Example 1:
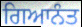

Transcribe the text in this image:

ਗਿਆਨੰਤ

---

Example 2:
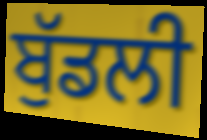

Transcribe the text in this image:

ਬੁੱਡਲੀ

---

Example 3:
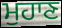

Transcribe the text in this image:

ਮੁਹਾਣ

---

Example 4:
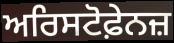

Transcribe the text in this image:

ਅਰਿਸਟੋਫ਼ੇਨਜ਼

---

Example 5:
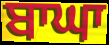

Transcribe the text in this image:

ਬਾਘਾ